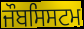
ਜੌਬਸਿਸਟਮ